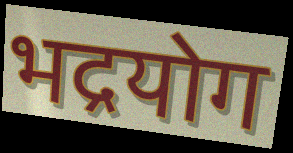
भद्रयोग